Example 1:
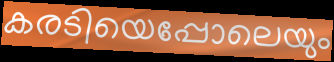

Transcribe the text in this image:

കരടിയെപ്പോലെയും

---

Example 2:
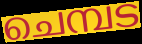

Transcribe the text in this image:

ചെമ്പട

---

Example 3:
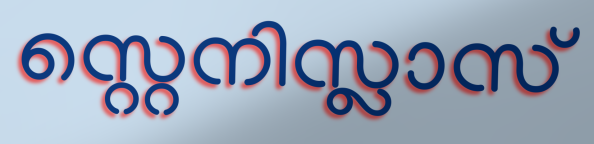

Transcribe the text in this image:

സ്റ്റെനിസ്ലാസ്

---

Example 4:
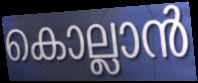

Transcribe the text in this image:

കൊല്ലാൻ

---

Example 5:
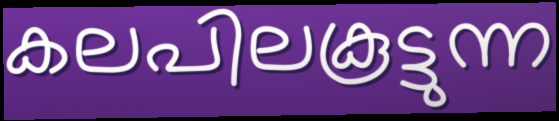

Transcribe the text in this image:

കലപിലകൂട്ടുന്ന